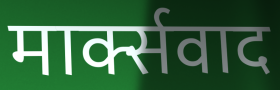
मार्क्सवाद